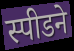
स्पीडने